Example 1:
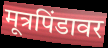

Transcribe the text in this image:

मूत्रपिंडावर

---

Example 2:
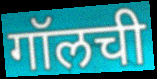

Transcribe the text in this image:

गॉलची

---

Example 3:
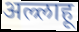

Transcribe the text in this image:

अल्लाहू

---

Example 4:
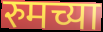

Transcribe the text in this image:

रुमच्या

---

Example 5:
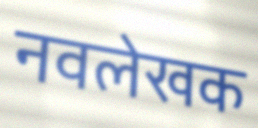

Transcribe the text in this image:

नवलेखक